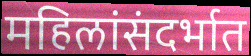
महिलांसंदर्भात